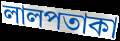
লালপতাকা